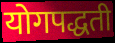
योगपद्धती